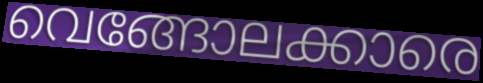
വെങ്ങോലക്കാരെ